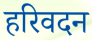
हरिवदन